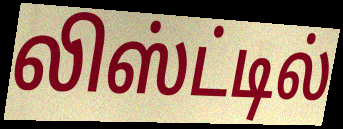
லிஸ்ட்டில்